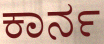
ಕಾರ್ನ